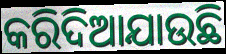
କରିଦିଆଯାଉଛି